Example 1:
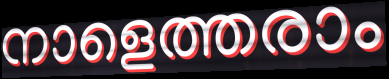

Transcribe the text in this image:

നാളെത്തരാം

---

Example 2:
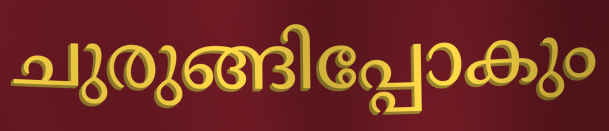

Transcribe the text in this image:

ചുരുങ്ങിപ്പോകും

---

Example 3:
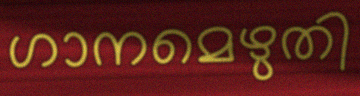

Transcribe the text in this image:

ഗാനമെഴുതി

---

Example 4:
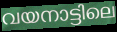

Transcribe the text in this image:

വയനാട്ടിലെ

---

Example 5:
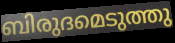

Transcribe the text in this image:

ബിരുദമെടുത്തു